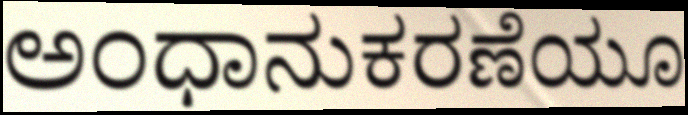
ಅಂಧಾನುಕರಣೆಯೂ